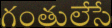
గంతులేసే